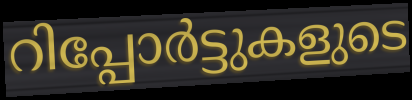
റിപ്പോർട്ടുകളുടെ